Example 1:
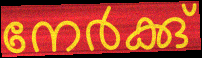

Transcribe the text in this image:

നേർക്കു്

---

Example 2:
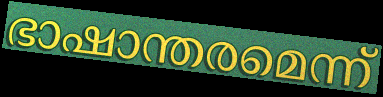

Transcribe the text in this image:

ഭാഷാന്തരമെന്ന്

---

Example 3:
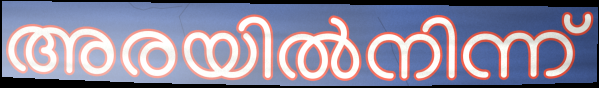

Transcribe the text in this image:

അരയിൽനിന്ന്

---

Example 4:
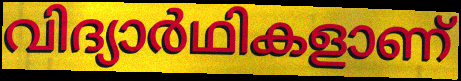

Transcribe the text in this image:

വിദ്യാർഥികളാണ്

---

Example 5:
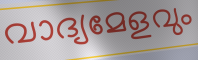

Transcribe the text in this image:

വാദ്യമേളവും